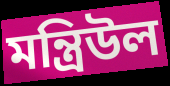
মন্ত্রিউল